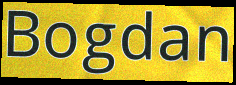
Bogdan